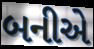
બનીએ